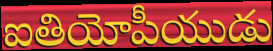
ఐతియోపీయుడు